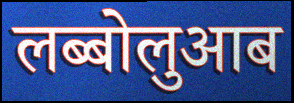
लब्बोलुआब